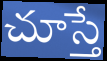
చూస్తే